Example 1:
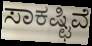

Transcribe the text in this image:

ಸಾಕಷ್ಟಿವೆ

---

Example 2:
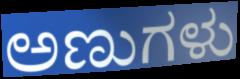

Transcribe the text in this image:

ಅಣುಗಳು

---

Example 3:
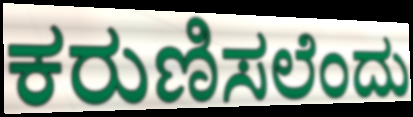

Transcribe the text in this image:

ಕರುಣಿಸಲೆಂದು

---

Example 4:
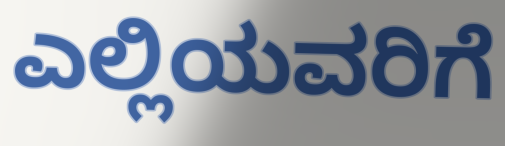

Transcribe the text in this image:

ಎಲ್ಲಿಯವರಿಗೆ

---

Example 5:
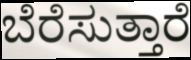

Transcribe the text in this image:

ಬೆರೆಸುತ್ತಾರೆ